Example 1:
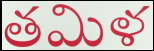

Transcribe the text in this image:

తమిళ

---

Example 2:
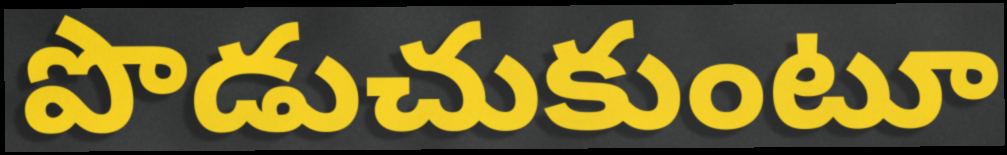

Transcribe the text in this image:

పొడుచుకుంటూ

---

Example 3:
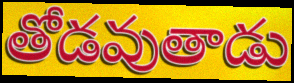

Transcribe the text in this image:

తోడవుతాడు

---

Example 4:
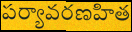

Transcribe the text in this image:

పర్యావరణహిత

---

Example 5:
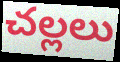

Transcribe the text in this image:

చల్లలు